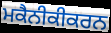
ਮਕੈਨੀਕੀਕਰਨ